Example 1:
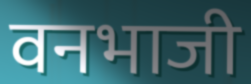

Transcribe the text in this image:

वनभाजी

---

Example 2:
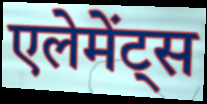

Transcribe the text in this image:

एलेमेंट्स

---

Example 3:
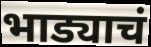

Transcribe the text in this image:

भाड्याचं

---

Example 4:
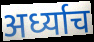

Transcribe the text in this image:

अर्ध्याच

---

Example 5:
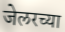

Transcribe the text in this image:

जेलरच्या